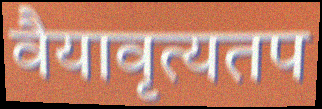
वैयावृत्यतप